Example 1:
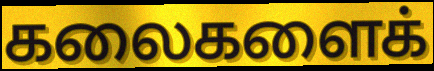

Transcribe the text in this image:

கலைகளைக்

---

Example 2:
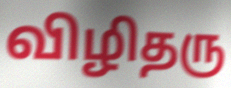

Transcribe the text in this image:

விழிதரு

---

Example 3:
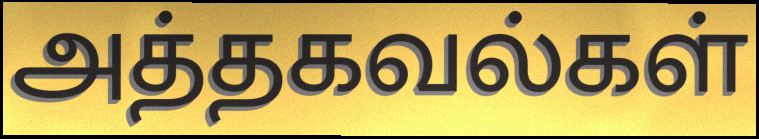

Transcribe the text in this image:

அத்தகவல்கள்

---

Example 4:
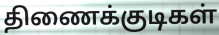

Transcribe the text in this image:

திணைக்குடிகள்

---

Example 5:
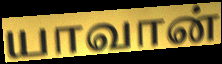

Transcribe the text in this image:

யாவான்